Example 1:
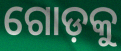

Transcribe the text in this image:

ଗୋଡ଼କୁ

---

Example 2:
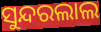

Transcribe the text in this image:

ସୁନ୍ଦରଲାଲ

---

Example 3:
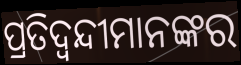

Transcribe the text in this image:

ପ୍ରତିଦ୍ୱନ୍ଦୀମାନଙ୍କର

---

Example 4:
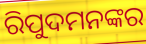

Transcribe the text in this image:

ରିପୁଦମନଙ୍କର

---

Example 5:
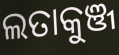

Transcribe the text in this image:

ଲତାକୁଞ୍ଜ